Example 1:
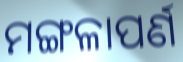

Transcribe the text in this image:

ମଙ୍ଗଳାପର୍ଣ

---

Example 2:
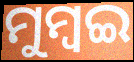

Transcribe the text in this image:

ମୁମ୍ବଇ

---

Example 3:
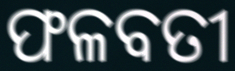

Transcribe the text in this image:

ଫଳବତୀ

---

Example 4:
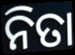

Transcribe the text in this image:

ନିତା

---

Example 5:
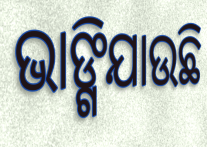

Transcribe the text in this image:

ଭାଙ୍ଗିଯାଉଛି